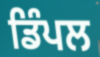
ਡਿੰਪਲ